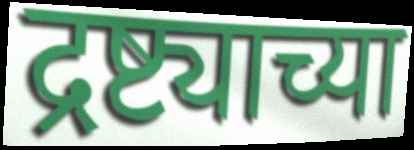
द्रष्ट्याच्या